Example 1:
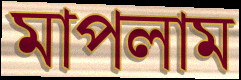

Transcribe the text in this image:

মাপলাম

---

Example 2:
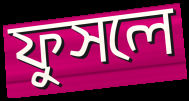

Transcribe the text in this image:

ফুসলে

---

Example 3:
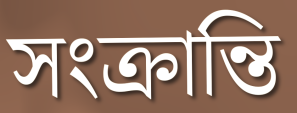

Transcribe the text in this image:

সংক্রান্তি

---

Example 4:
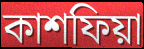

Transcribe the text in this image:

কাশফিয়া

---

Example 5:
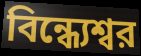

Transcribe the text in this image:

বিন্ধ্যেশ্বর